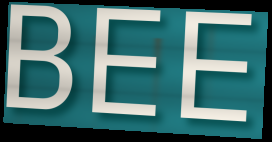
BEE